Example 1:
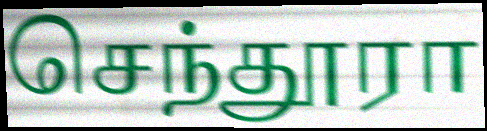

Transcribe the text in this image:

செந்தூரா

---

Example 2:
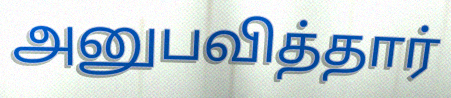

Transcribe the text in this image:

அனுபவித்தார்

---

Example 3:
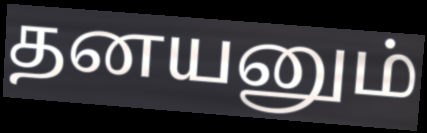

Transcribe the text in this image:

தனயனும்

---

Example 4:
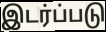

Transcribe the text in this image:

இடர்ப்படு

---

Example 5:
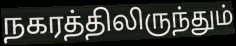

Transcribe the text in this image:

நகரத்திலிருந்தும்